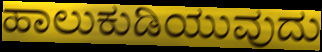
ಹಾಲುಕುಡಿಯುವುದು